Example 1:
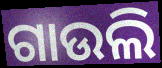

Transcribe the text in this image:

ଗାଉଲି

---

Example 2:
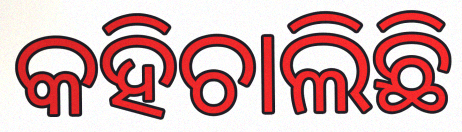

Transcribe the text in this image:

କହିଚାଲିଛି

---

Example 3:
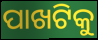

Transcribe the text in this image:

ପାଖଟିକୁ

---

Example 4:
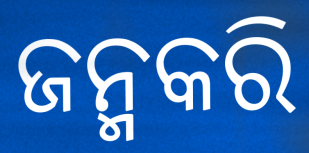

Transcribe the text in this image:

ଜନ୍ମକରି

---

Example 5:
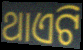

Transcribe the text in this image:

ଥାଏଟି